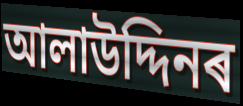
আলাউদ্দিনৰ